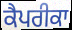
ਕੈਪਰੀਕਾ